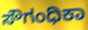
ಸೌಗಂಧಿಕಾ